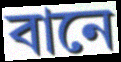
বানে